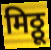
मिठ्ठू